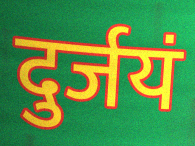
दुर्जयं